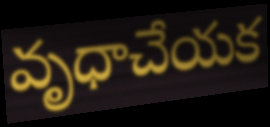
వృధాచేయక